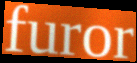
furor